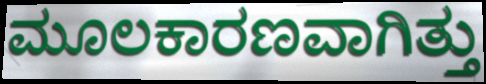
ಮೂಲಕಾರಣವಾಗಿತ್ತು